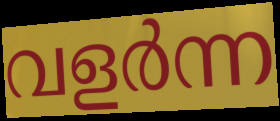
വളർന്ന